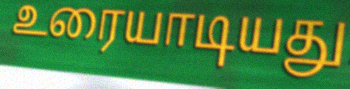
உரையாடியது